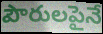
పౌరులపైనే